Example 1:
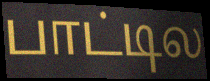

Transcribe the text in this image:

பாட்டில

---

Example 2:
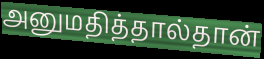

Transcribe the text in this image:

அனுமதித்தால்தான்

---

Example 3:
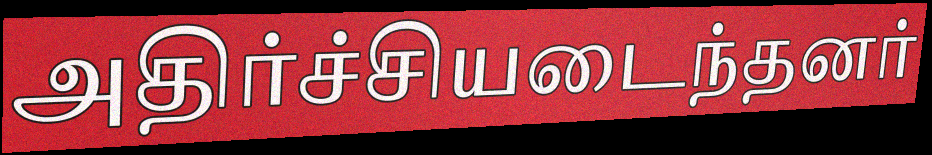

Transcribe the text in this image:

அதிர்ச்சியடைந்தனர்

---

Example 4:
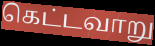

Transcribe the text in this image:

கெட்டவாறு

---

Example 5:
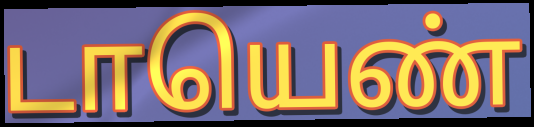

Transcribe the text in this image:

டாயெண்